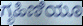
ಗೃಹಿಣಿಯೂ